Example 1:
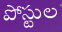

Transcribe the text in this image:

పోస్టుల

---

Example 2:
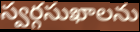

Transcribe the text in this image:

స్వర్గసుఖాలను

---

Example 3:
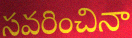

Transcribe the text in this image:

సవరించినా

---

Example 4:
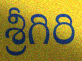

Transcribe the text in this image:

శ్రీగిరి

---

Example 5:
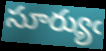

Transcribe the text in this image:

సూర్యుఁ